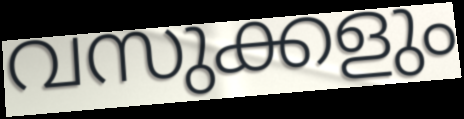
വസുക്കളും